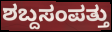
ಶಬ್ದಸಂಪತ್ತು